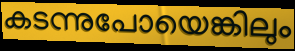
കടന്നുപോയെങ്കിലും